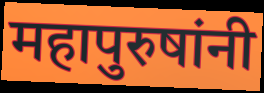
महापुरुषांनी